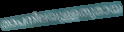
താപനിലയുള്ളതുമായ